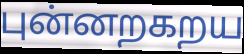
புன்னறகறய